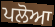
ਪਲੋਆ